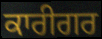
ਕਾਰੀਗਰ